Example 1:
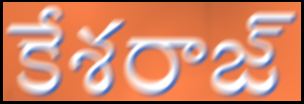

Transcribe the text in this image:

కేశరాజ్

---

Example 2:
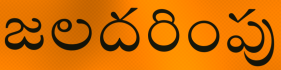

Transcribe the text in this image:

జలదరింపు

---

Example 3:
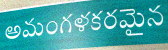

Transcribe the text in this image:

అమంగళకరమైన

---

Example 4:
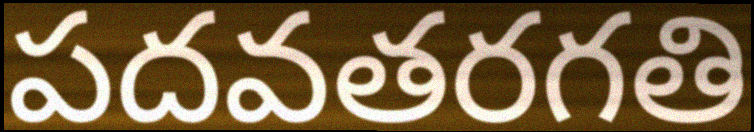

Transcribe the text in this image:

పదవతరగతి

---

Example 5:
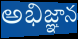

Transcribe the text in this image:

అభిజ్ఞాన